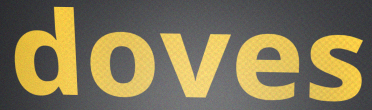
doves